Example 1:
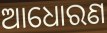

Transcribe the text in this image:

ଆଧୋରଣ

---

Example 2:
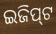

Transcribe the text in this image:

ଇଜିପ୍‌ଟ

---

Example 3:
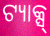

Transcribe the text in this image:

ଟ୍ୟାକ୍ସ୍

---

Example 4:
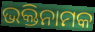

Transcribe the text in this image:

ଭକ୍ତିନାମକ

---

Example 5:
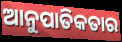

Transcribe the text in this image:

ଆନୁପାତିକତାର